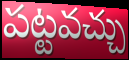
పట్టవచ్చు